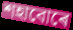
শহাবোৰে